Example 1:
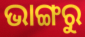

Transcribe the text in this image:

ଭାଙ୍ଗରୁ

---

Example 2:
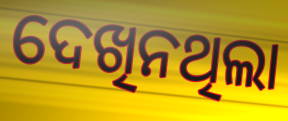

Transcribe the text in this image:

ଦେଖିନଥିଲା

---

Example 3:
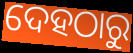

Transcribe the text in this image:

ଦେହଠାରୁ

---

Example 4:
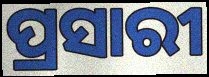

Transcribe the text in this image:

ପ୍ରସାରୀ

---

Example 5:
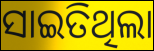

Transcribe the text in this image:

ସାଇତିଥିଲା